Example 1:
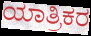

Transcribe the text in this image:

ಯಾತ್ರಿಕರ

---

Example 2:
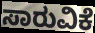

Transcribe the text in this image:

ಸಾರುವಿಕೆ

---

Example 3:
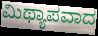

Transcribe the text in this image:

ಮಿಥ್ಯಾಪವಾದ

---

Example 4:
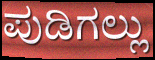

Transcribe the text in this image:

ಪುಡಿಗಲ್ಲು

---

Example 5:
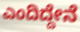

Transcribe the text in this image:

ಎಂದಿದ್ದೇನೆ